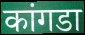
कांगडा